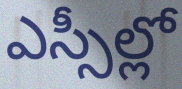
ఎస్సీల్లో